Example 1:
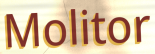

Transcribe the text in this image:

Molitor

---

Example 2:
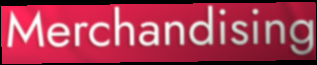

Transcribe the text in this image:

Merchandising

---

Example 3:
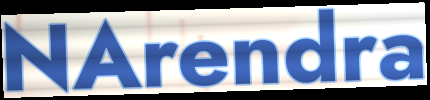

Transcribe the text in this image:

NArendra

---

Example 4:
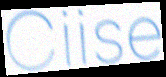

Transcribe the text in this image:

Ciise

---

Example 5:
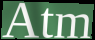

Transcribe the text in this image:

Atm